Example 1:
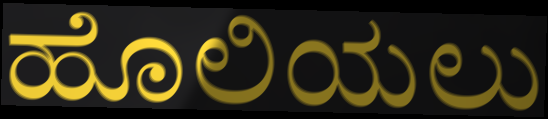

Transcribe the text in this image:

ಹೊಲಿಯಲು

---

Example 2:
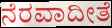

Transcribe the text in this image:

ನೆರವಾದೀತೆ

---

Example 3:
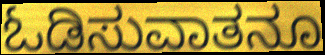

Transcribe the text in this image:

ಓಡಿಸುವಾತನೂ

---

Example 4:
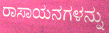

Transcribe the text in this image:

ರಾಸಾಯನಗಳನ್ನು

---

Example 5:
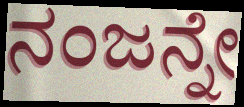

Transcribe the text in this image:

ನಂಜನ್ನೇ